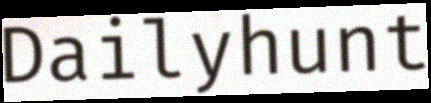
Dailyhunt